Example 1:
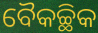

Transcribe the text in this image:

ବୈକଚ୍ଛିକ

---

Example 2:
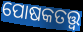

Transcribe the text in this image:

ପୋଷକତତ୍ତ୍ବ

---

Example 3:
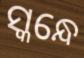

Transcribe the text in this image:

ସ୍କନ୍ଧେ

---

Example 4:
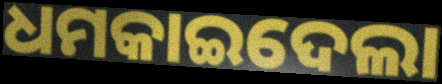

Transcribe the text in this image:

ଧମକାଇଦେଲା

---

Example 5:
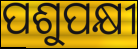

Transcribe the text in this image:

ପଶୁପକ୍ଷୀ